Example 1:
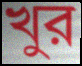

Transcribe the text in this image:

খুর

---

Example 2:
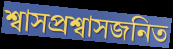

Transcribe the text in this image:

শ্বাসপ্রশ্বাসজনিত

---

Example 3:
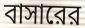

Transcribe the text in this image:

বাসারের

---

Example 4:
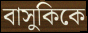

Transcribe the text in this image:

বাসুকিকে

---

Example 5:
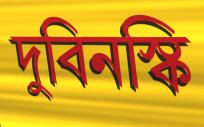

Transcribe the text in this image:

দুবিনস্কি